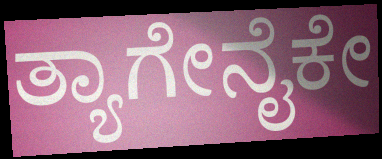
ತ್ಯಾಗೇನೈಕೇ